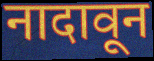
नादावून